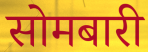
सोमबारी